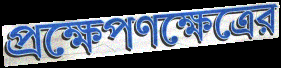
প্রক্ষেপণক্ষেত্রের